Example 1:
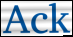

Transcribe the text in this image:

Ack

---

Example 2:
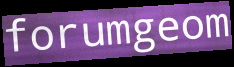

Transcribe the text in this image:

forumgeom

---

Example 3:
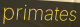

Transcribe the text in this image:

primates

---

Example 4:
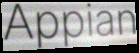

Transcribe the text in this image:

Appian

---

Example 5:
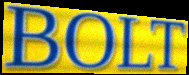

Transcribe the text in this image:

BOLT